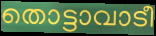
തൊട്ടാവാടീ